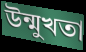
উন্মুখতা